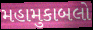
મહામુકાબલો